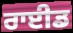
ਰਾਈਡ